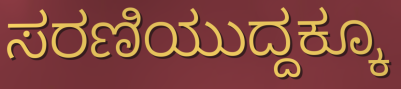
ಸರಣಿಯುದ್ದಕ್ಕೂ